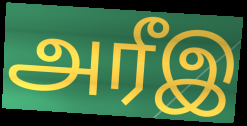
அரீஇ